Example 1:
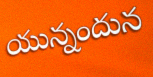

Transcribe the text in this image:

యున్నందున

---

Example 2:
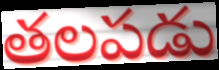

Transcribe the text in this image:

తలపడు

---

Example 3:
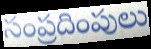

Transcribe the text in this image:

సంప్రదింపులు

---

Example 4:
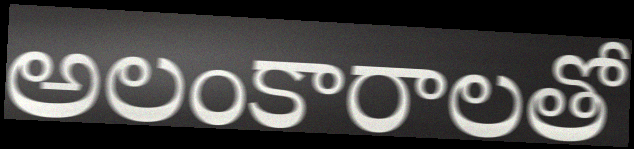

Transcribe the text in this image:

అలంకారాలతో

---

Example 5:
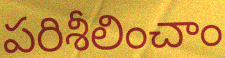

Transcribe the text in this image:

పరిశీలించాం